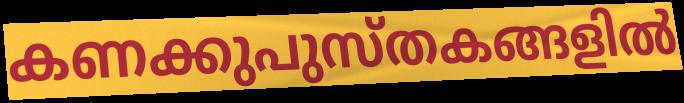
കണക്കുപുസ്തകങ്ങളിൽ